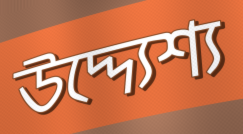
উদ্দ্যেশ্য